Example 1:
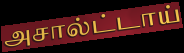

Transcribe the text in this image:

அசால்ட்டாய்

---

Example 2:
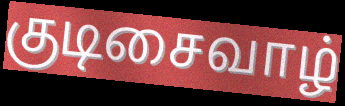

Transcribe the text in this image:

குடிசைவாழ்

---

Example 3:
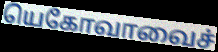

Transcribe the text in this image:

யெகோவாவைச்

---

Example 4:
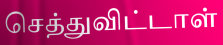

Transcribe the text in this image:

செத்துவிட்டாள்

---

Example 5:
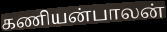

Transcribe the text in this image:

கணியன்பாலன்